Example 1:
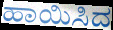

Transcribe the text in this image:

ಹಾಯಿಸಿದ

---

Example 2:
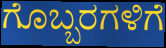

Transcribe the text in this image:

ಗೊಬ್ಬರಗಳಿಗೆ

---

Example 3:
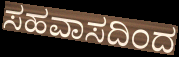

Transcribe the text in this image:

ಸಹವಾಸದಿಂದ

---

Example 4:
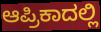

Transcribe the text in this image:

ಆಪ್ರಿಕಾದಲ್ಲಿ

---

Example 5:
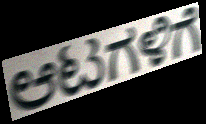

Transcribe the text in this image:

ಆಟಗಳಿಗೆ